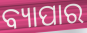
ବ୍ଯାପାର